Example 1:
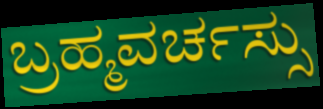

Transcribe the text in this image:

ಬ್ರಹ್ಮವರ್ಚಸ್ಸು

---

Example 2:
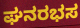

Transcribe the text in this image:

ಘನರಭಸ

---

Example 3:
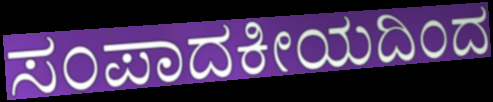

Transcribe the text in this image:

ಸಂಪಾದಕೀಯದಿಂದ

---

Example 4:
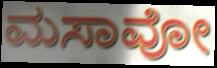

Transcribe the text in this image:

ಮಸಾವೋ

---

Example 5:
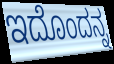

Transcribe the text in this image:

ಇದೊಂದನ್ನ